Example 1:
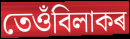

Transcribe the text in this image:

তেওঁবিলাকৰ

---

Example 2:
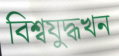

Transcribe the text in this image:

বিশ্বযুদ্ধখন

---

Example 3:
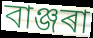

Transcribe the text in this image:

বাঞ্জৰা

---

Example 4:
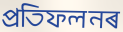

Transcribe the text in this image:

প্ৰতিফলনৰ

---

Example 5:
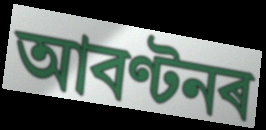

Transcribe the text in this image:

আবণ্টনৰ